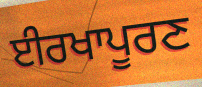
ਈਰਖਾਪੂਰਣ